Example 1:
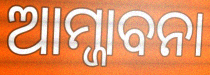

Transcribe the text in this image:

ଆମ୍ଜାବନା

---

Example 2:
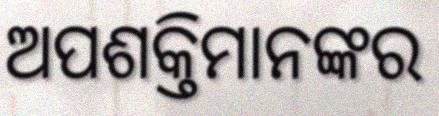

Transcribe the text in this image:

ଅପଶକ୍ତିମାନଙ୍କର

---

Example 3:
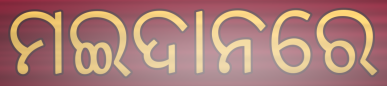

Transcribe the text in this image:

ମଇଦାନରେ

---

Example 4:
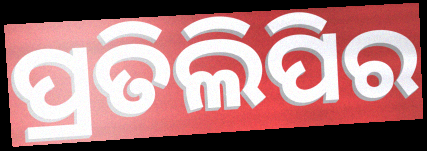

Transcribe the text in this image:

ପ୍ରତିଲିପିର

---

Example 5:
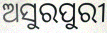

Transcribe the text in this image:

ଅସୁରପୁରୀ